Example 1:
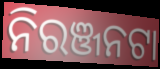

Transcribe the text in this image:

ନିରଞ୍ଜନଟା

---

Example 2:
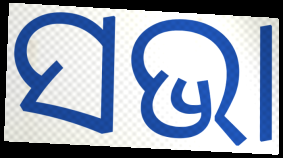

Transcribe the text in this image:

ସଭା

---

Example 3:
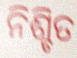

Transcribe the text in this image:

ନିଶ୍ଚିତ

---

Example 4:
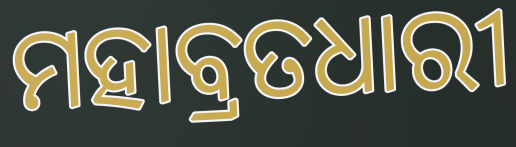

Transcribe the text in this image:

ମହାବ୍ରତଧାରୀ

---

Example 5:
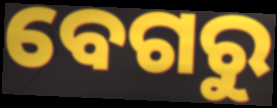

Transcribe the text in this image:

ବେଗରୁ